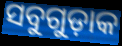
ସବୁଗୁଡ଼ାକ